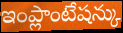
ఇంప్లాంటేషన్కు